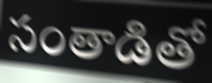
సంతాడితో